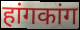
हांगकांग